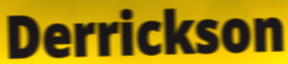
Derrickson